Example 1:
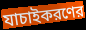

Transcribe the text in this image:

যাচাইকরণের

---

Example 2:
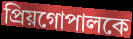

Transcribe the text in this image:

প্রিয়গোপালকে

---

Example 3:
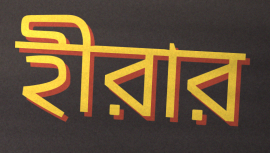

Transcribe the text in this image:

হীরার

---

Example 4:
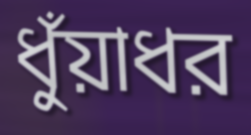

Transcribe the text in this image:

ধুঁয়াধর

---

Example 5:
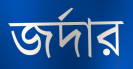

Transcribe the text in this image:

জর্দার